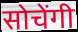
सोचेंगी